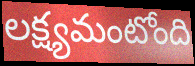
లక్ష్యమంటోంది